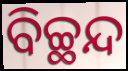
ବିଚ୍ଛନ୍ଦ